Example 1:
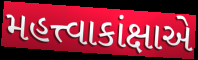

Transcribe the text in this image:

મહત્ત્વાકાંક્ષાએ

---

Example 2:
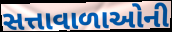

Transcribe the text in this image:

સત્તાવાળાઓની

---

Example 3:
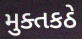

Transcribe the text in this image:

મુક્તકઠે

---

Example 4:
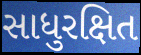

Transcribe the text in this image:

સાધુરક્ષિત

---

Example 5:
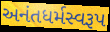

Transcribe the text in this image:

અનંતધર્મસ્વરૂપ